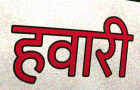
हवारी